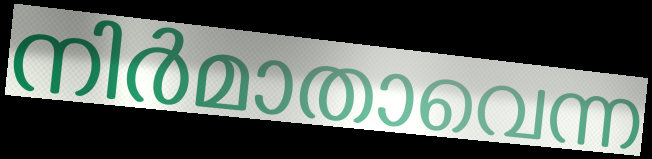
നിർമാതാവെന്ന